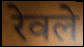
रेवले